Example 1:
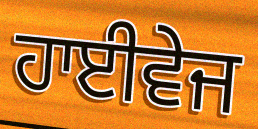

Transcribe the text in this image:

ਹਾਈਵੇਜ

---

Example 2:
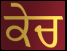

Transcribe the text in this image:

ਕੇਚ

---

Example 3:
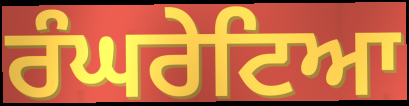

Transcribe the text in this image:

ਰੰਘਰੇਟਿਆ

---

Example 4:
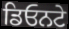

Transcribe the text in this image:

ਡਿਓਨਟੇ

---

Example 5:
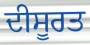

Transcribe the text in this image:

ਦੀਸੂਰਤ